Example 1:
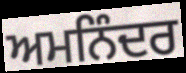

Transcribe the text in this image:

ਅਮਨਿੰਦਰ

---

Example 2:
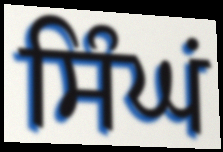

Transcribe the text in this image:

ਸਿੰਘਂ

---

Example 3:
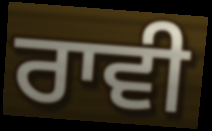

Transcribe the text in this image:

ਰਾਵੀ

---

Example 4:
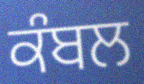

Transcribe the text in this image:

ਕੰਬਲ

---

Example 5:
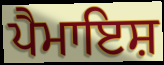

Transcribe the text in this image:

ਪੈਮਾਇਸ਼